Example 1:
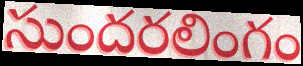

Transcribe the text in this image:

సుందరలింగం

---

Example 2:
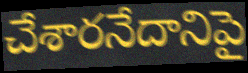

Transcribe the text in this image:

చేశారనేదానిపై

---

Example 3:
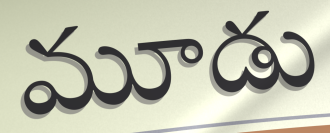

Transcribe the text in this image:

మూడు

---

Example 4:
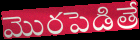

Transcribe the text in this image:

మొరపెడితే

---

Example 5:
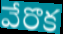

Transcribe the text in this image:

వేరొక